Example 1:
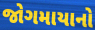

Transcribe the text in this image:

જોગમાયાનો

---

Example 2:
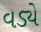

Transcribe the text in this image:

વડ્યે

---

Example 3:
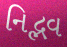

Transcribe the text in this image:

નિદ્ભવ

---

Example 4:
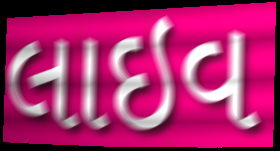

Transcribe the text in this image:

લાઇવ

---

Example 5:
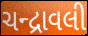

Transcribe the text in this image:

ચન્દ્રાવલી